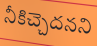
నీకిచ్చెదనని